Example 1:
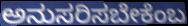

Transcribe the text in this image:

ಅನುಸರಿಸಬೇಕೆಂಬ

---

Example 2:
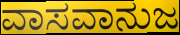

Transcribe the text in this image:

ವಾಸವಾನುಜ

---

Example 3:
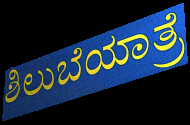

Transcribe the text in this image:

ಶಿಲುಬೆಯಾತ್ರೆ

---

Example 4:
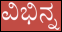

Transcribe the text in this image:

ವಿಭಿನ್ನ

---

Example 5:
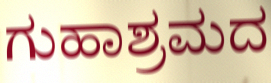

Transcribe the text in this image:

ಗುಹಾಶ್ರಮದ